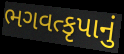
ભગવત્કૃપાનું